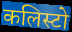
कलिस्टो